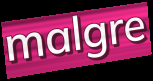
malgre